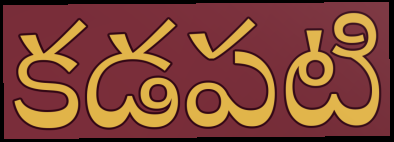
కడపటి